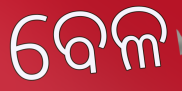
ବେଳ